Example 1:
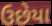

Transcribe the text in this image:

ઉછેયા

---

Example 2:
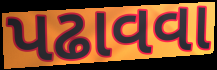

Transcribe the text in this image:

પઢાવવા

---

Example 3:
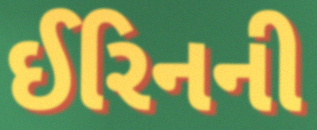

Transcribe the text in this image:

ઈરિનની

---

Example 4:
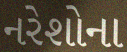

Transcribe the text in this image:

નરેશોના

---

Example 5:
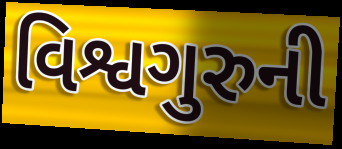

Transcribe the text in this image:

વિશ્વગુરુની